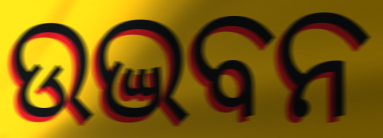
ଉଦ୍ଭବନ